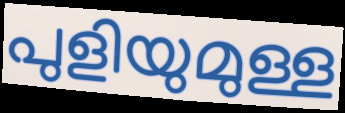
പുളിയുമുള്ള